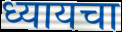
ध्यायचा